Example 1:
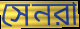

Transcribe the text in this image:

সেনরা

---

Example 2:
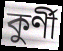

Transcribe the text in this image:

কুর্ণী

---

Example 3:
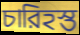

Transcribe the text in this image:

চারিহস্ত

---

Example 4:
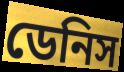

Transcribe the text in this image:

ডেনিস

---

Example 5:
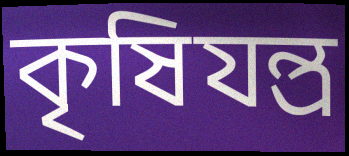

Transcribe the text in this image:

কৃষিযন্ত্র